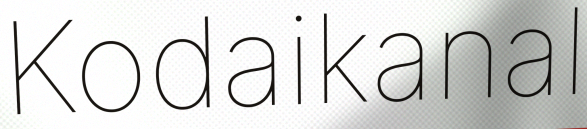
Kodaikanal